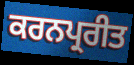
ਕਰਨਪ੍ਰਰੀਤ